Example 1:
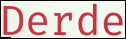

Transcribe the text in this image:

Derde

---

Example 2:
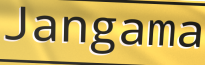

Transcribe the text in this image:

Jangama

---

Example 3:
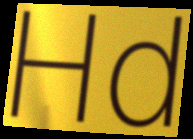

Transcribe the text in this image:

Hd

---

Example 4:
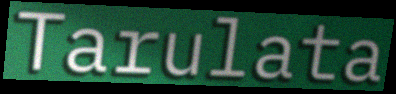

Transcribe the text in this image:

Tarulata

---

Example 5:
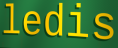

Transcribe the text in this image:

ledis